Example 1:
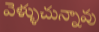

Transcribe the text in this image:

వెళ్ళుచున్నావు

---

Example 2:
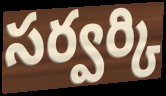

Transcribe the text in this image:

సర్వర్కి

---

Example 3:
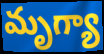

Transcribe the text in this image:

మృగ్యా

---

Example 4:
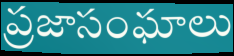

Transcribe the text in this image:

ప్రజాసంఘాలు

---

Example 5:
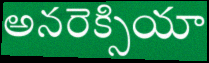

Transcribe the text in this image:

అనరెక్సియా